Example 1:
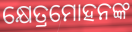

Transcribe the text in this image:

କ୍ଷେତ୍ରମୋହନଙ୍କ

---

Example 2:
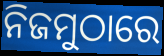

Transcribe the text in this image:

ନିଜମୁଠାରେ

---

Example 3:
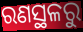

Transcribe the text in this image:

ରଣସ୍ଥଳରୁ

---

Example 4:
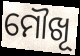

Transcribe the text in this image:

ମୌଖୂ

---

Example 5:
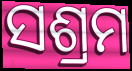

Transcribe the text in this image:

ସଶ୍ରମ